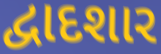
દ્વાદશાર